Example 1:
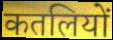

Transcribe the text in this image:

कतलियों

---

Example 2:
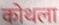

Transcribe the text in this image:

कोथला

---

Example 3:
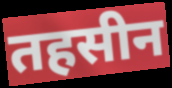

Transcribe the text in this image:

तहसीन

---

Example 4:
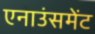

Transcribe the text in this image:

एनाउंसमेंट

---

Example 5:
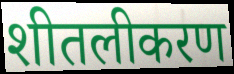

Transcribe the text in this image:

शीतलीकरण